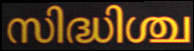
സിദ്ധിശ്ച